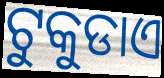
ଟୁକୁଡାଏ